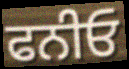
ਫਨੀਓ